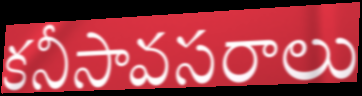
కనీసావసరాలు